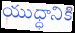
యుధ్ధానికి